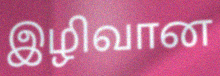
இழிவான